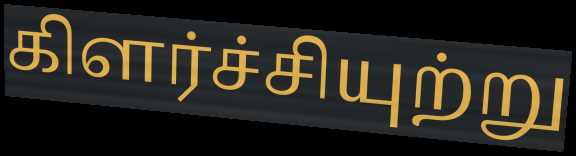
கிளர்ச்சியுற்று